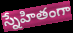
స్నేహితంగా